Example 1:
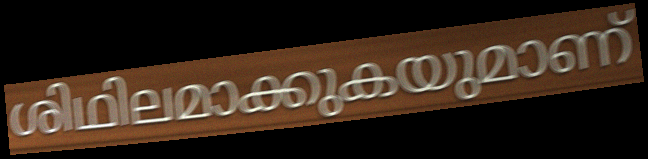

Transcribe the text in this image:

ശിഥിലമാക്കുകയുമാണ്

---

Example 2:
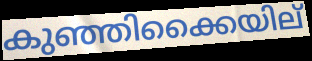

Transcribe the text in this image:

കുഞ്ഞിക്കൈയില്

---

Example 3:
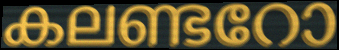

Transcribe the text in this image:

കലണ്ടറോ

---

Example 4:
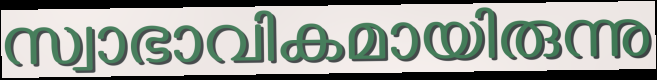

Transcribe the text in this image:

സ്വാഭാവികമായിരുന്നു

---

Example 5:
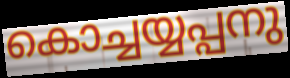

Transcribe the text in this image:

കൊച്ചയ്യപ്പനു